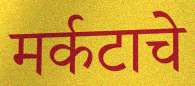
मर्कटाचे